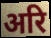
अरि